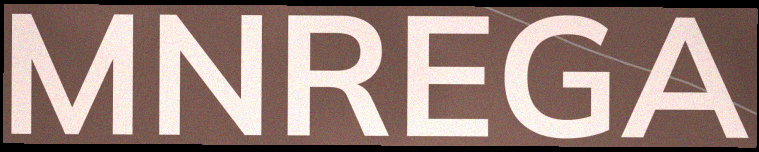
MNREGA